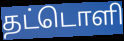
தட்டொளி